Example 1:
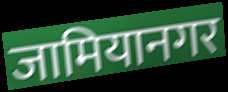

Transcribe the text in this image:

जामियानगर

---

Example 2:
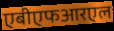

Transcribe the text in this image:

एबीएफआरएल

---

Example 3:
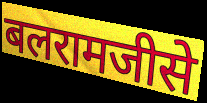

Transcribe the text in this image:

बलरामजीसे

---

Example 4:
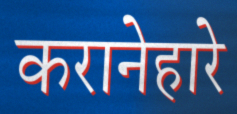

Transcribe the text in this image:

करानेहारे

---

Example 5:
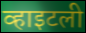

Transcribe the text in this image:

व्हाइटली